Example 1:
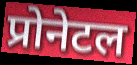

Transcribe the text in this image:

प्रोनेटल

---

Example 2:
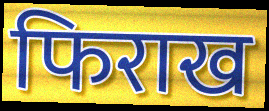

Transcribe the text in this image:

फिराख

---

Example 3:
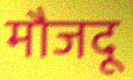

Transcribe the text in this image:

मौजदू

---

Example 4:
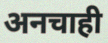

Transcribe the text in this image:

अनचाही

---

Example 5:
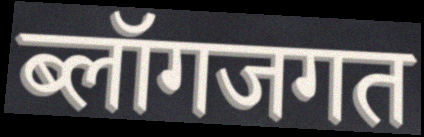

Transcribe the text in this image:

ब्लॉगजगत